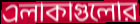
এলাকাগুলোর